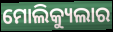
ମୋଲିକ୍ୟୁଲାର